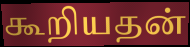
கூறியதன்